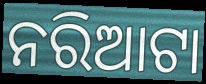
ନରିଆଟା